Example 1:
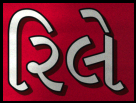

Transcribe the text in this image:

રિલે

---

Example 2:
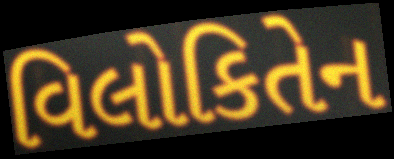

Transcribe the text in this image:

વિલોકિતેન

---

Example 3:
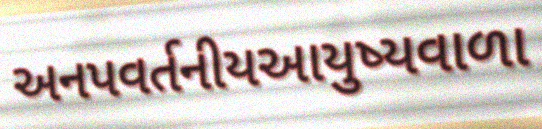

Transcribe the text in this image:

અનપવર્તનીયઆયુષ્યવાળા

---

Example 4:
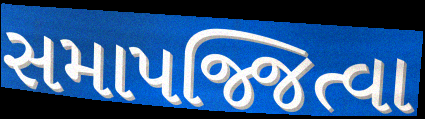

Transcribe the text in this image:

સમાપજ્જિત્વા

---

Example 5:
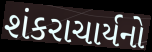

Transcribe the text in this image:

શંકરાચાર્યનો